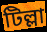
টিল্লা